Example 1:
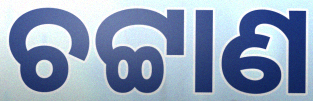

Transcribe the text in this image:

ଚଟ୍ଟାଣ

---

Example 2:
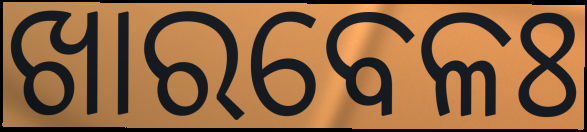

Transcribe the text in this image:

ଖାରବେଳଃ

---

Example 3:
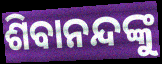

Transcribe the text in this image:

ଶିବାନନ୍ଦଙ୍କୁ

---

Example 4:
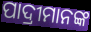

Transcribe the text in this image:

ପାଦ୍ରୀମାନଙ୍କ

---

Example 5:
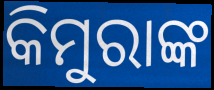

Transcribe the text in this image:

କିମୁରାଙ୍କ